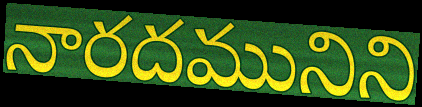
నారదమునిని